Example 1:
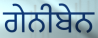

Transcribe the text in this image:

ਗੇਨੀਬੇਨ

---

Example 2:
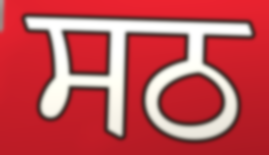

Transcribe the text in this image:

ਸਠ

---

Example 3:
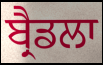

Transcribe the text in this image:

ਬ੍ਰੈਡਲਾ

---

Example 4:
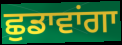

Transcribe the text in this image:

ਛੁਡਾਵਾਂਗਾ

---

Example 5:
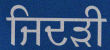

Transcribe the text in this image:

ਜਿਦੜੀ